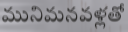
మునిమనవళ్లతో